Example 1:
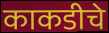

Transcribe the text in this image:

काकडीचे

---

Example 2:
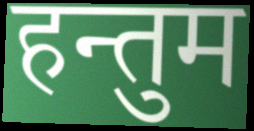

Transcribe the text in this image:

हन्तुम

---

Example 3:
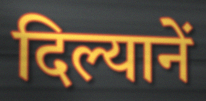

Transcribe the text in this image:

दिल्यानें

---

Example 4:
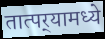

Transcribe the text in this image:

तात्पर्यामध्ये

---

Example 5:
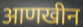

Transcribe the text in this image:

आणखीन